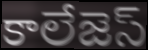
కాలేజెస్